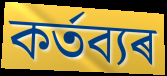
কৰ্তব্যৰ